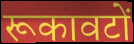
रूकावटों